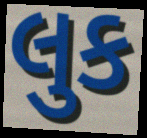
લુક